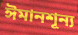
ঈমানশূন্য